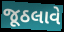
જૂઠલાવે